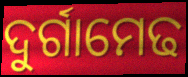
ଦୁର୍ଗାମେଢ